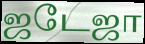
ஜடேஜா